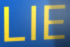
LIE